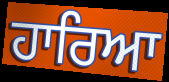
ਹਾਰਿਆ